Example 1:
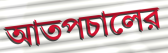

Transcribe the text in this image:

আতপচালের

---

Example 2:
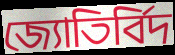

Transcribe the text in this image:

জ্যোতির্বিদ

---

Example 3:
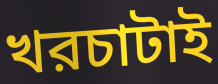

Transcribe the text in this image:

খরচাটাই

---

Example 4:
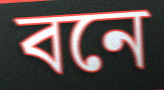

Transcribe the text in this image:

বনে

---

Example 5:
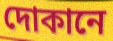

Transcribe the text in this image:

দোকানে